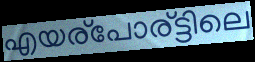
എയര്പോര്ട്ടിലെ